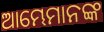
ଆମ୍ଭେମାନଙ୍କ